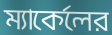
ম্যার্কেলের